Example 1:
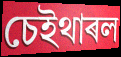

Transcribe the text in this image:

চেইথাৰল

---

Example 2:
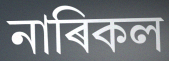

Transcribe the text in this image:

নাৰিকল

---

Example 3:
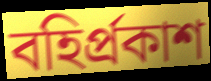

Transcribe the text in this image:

বহিৰ্প্ৰকাশ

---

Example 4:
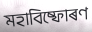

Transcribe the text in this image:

মহাবিষ্ফোৰণ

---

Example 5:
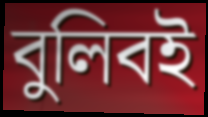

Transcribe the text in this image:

বুলিবই